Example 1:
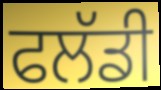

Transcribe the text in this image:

ਫਲੱਡੀ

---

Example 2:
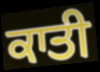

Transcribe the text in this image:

ਕਾਤੀ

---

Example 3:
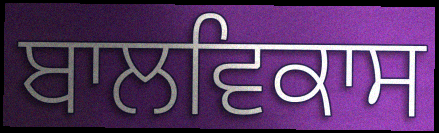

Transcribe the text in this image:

ਬਾਲਵਿਕਾਸ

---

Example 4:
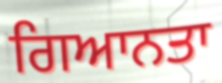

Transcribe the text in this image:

ਗਿਆਨਤਾ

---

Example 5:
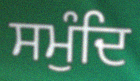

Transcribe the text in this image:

ਸਮੁੰਦਿ